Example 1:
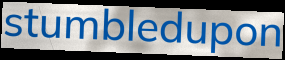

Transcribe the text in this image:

stumbledupon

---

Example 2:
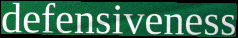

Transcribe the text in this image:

defensiveness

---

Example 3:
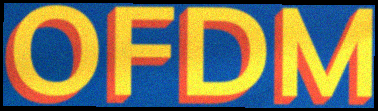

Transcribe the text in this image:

OFDM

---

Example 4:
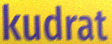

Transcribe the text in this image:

kudrat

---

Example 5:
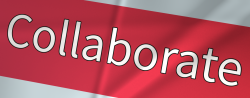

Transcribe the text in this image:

Collaborate